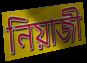
নিয়াজী